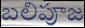
బలిపూజ